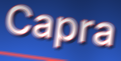
Capra